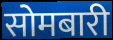
सोमबारी